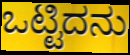
ಒಟ್ಟಿದನು